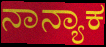
ನಾನ್ಯಾಕ